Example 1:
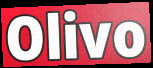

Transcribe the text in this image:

Olivo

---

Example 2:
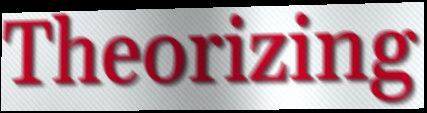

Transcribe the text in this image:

Theorizing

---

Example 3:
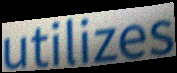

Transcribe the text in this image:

utilizes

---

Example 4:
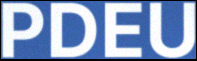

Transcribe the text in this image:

PDEU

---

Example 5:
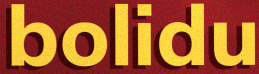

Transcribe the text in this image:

bolidu